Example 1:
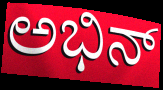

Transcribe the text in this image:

ಅಭಿನ್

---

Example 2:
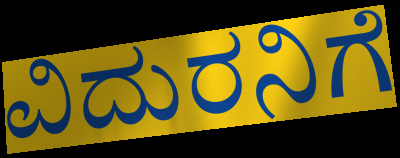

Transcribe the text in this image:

ವಿದುರನಿಗೆ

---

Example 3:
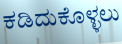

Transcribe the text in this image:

ಕಡಿದುಕೊಳ್ಳಲು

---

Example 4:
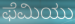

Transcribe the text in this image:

ಫೆಮಿಯು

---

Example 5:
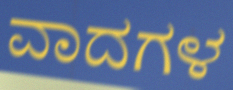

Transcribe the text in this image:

ವಾದಗಳ